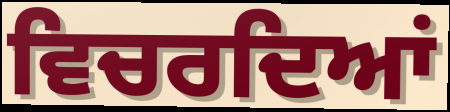
ਵਿਚਰਦਿਆਂ